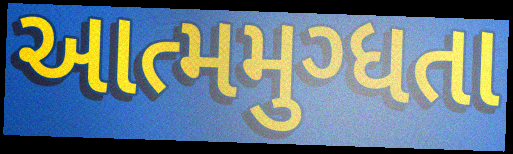
આત્મમુગ્ધતા